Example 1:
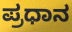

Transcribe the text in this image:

ಪ್ರಧಾನ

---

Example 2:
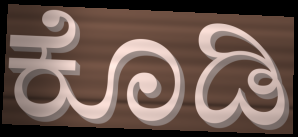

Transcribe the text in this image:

ಕೊಡಿ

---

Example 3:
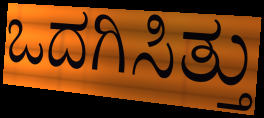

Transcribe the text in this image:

ಒದಗಿಸಿತ್ತು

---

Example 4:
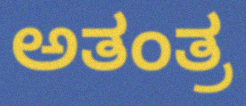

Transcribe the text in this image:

ಅತಂತ್ರ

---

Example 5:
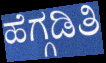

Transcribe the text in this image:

ಹೆಗ್ಗಡಿತಿ